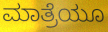
ಮಾತ್ರೆಯೂ